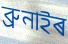
ব্ৰুনাইৰ